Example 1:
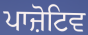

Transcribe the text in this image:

ਪਾਜ਼ੋਟਿਵ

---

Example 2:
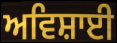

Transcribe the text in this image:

ਅਵਿਸ਼ਾਈ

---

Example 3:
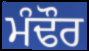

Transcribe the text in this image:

ਮੰਢੌਰ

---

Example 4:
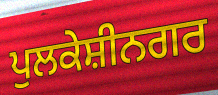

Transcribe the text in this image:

ਪੁਲਕੇਸ਼ੀਨਗਰ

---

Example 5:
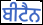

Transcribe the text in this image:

ਬੀਟੈਨ